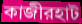
কাজীরহাট